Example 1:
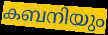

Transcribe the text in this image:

കബനിയും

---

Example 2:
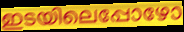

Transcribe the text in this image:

ഇടയിലെപ്പോഴോ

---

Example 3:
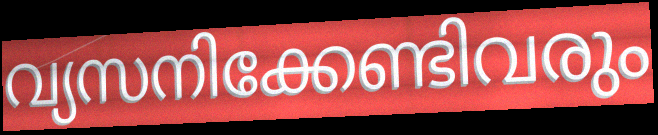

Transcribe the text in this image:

വ്യസനിക്കേണ്ടിവരും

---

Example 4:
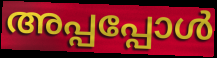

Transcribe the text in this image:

അപ്പപ്പോൾ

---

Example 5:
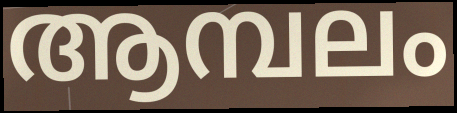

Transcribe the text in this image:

ആമ്പലം